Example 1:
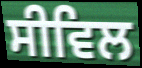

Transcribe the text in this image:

ਸੀਵਿਲ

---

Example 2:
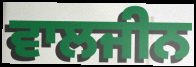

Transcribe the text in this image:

ਵਾਲਜੀਨ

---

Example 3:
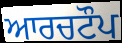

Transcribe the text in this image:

ਆਰਚਟੌਪ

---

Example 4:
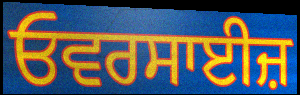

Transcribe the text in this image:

ਓਵਰਸਾਈਜ਼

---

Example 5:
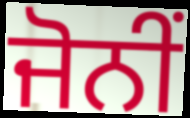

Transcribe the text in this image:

ਜੋਨੀਂ